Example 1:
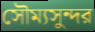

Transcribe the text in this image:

সৌম্যসুন্দর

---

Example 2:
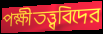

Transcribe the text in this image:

পক্ষীতত্ত্ববিদের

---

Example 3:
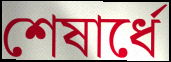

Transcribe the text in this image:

শেষার্ধে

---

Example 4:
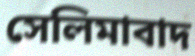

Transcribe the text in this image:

সেলিমাবাদ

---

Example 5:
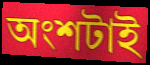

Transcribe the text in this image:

অংশটাই